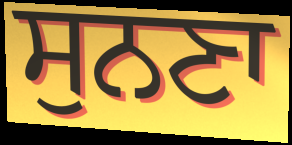
ਸੁਨਣਾ